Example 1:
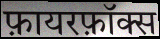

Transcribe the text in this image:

फ़ायरफ़ॉक्स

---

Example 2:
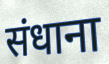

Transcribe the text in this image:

संधाना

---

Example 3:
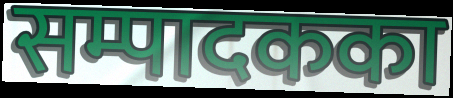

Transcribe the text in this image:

सम्पादकका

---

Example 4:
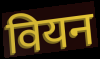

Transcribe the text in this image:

वियन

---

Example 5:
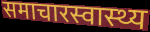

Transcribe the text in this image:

समाचारस्वास्थ्य